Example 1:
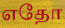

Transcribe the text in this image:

எதோ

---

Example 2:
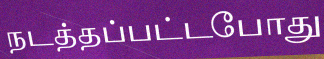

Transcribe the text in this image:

நடத்தப்பட்டபோது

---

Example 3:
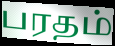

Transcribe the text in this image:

பரதம்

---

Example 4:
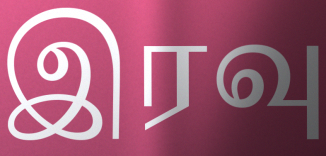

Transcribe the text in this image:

இரவு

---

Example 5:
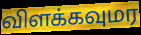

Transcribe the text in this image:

விளக்கவுமர